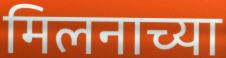
मिलनाच्या